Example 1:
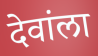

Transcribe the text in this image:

देवांला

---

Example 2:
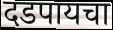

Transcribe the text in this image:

दडपायचा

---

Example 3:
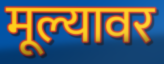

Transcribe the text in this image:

मूल्यावर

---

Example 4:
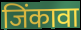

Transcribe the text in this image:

जिंकावा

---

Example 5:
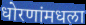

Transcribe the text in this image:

धोरणांमधला